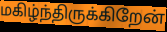
மகிழ்ந்திருக்கிறேன்